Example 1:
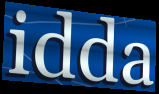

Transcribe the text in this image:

idda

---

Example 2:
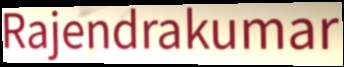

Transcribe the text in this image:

Rajendrakumar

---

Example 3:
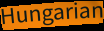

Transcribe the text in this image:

Hungarian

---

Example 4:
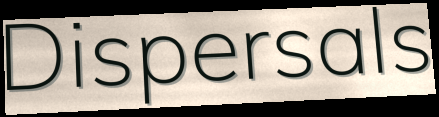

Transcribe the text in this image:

Dispersals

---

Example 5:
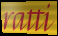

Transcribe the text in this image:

ratti